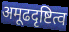
अमूढदृष्टित्व